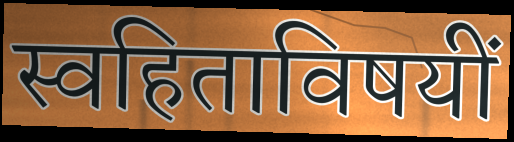
स्वहिताविषयीं